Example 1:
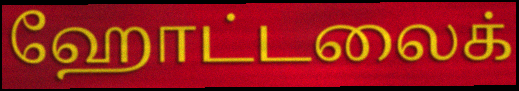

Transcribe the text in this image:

ஹோட்டலைக்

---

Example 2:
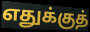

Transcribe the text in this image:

எதுக்குத்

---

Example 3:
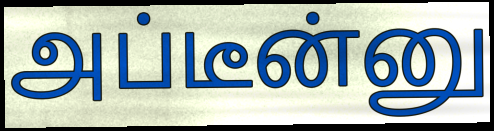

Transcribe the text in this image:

அப்டீன்னு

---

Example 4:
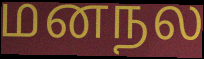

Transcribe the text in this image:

மனநல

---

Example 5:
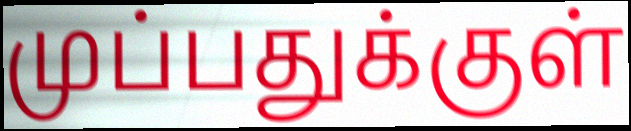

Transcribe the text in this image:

முப்பதுக்குள்